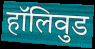
हॉलिवुड